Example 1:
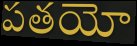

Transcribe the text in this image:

పతయో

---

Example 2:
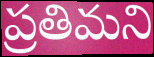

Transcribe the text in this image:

ప్రతిమని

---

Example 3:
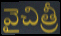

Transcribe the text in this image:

వైచిత్రీ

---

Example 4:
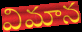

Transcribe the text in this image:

విమాన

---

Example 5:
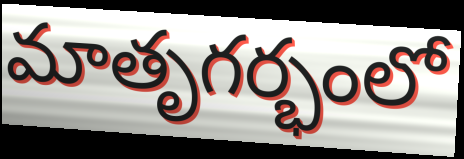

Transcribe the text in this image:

మాతృగర్భంలో